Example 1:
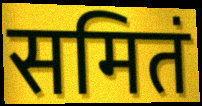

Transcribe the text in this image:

समितं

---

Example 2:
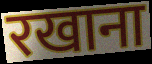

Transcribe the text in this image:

रखाना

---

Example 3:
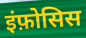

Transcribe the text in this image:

इंफ़ोसिस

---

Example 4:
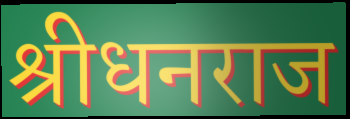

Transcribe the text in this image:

श्रीधनराज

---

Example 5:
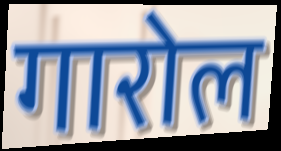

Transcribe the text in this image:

गारोल